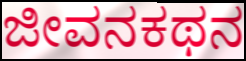
ಜೀವನಕಥನ